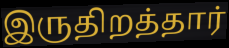
இருதிறத்தார்